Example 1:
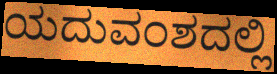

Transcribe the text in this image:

ಯದುವಂಶದಲ್ಲಿ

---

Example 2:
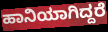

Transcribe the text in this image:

ಹಾನಿಯಾಗಿದ್ದರೆ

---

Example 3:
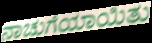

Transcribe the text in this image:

ನಾಚುಗೆಯಾಯಿತು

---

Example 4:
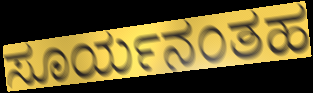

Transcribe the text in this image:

ಸೂರ್ಯನಂತಹ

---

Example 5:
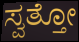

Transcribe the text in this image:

ಸ್ವತ್ತೋ